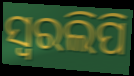
ସ୍ଵରଲିପି